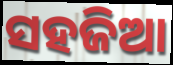
ସହଜିଆ